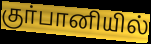
குர்பானியில்